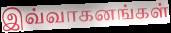
இவ்வாகனங்கள்